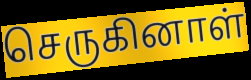
செருகினாள்